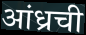
आंध्रची